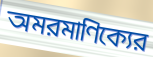
অমরমাণিক্যের